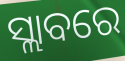
ସ୍ଲାବରେ